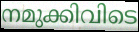
നമുക്കിവിടെ